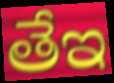
తేఇ